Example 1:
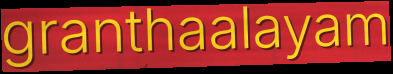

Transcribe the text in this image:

granthaalayam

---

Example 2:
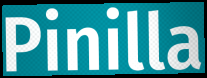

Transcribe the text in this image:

Pinilla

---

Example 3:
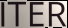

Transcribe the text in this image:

ITER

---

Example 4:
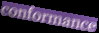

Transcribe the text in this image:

conformance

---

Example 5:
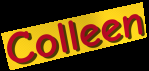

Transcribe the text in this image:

Colleen